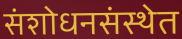
संशोधनसंस्थेत